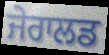
ਜੇਰਾਲਡ